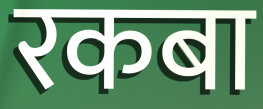
रकबा